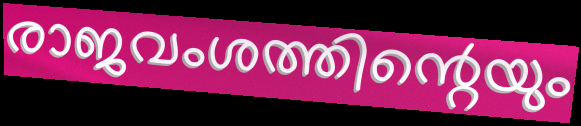
രാജവംശത്തിന്റെയും